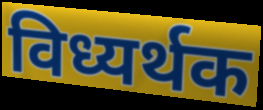
विध्यर्थक